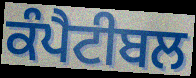
ਕੰਪੈਟੀਬਲ